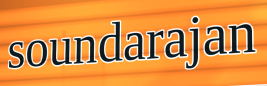
soundarajan